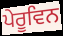
ਪੇਰੂਵਿਨ